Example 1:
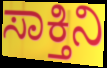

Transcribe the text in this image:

ಸಾಕ್ತಿನಿ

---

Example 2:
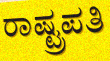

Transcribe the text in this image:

ರಾಷ್ಟ್ರಪತಿ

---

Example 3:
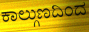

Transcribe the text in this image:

ಕಾಲ್ಗುಣದಿಂದ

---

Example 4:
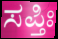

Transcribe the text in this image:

ಸಪ್ತಿಃ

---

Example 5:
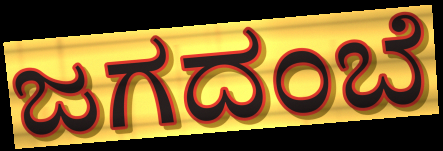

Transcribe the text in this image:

ಜಗದಂಬೆ